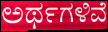
ಅರ್ಥಗಳಿವೆ